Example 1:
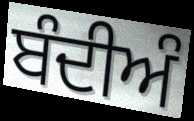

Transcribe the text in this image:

ਬੰਦੀਅੰ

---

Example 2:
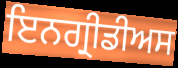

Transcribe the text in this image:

ਇਨਗ੍ਰੀਡੀਅਸ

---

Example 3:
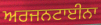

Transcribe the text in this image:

ਅਰਜਨਟਾਈਨਾ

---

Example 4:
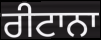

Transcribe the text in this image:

ਰੀਟਾਨਾ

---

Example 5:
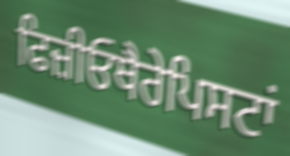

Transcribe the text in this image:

ਫਿਜ਼ੀਓਥੈਰੇਪਿਸਟਾਂ